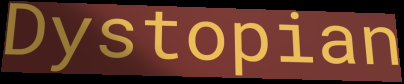
Dystopian